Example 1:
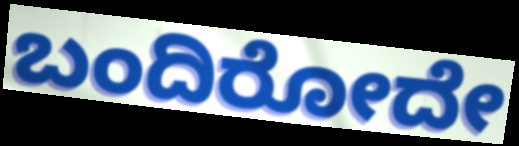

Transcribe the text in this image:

ಬಂದಿರೋದೇ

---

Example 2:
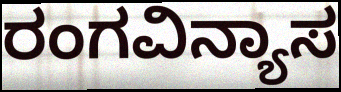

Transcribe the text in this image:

ರಂಗವಿನ್ಯಾಸ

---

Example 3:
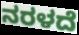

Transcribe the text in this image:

ನರಳದೆ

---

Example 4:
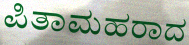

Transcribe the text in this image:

ಪಿತಾಮಹರಾದ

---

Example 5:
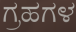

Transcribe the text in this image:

ಗ್ರಹಗಳ